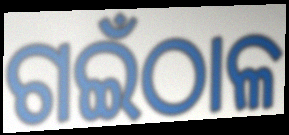
ଗଇଁଠାଳ